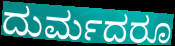
ದುರ್ಮದರೂ